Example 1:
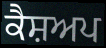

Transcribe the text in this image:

ਕੈਸ਼ਅਪ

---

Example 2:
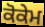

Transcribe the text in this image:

ਕੋਕੇਮ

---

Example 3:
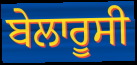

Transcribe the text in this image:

ਬੇਲਾਰੂਸੀ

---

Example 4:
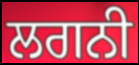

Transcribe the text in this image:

ਲਗਨੀ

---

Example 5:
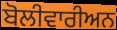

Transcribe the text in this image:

ਬੋਲੀਵਾਰੀਅਨ